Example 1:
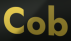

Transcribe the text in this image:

Cob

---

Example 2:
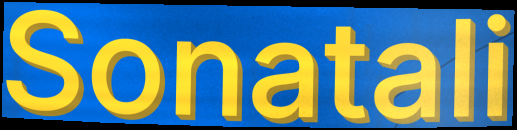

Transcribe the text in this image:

Sonatali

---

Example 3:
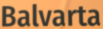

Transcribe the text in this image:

Balvarta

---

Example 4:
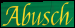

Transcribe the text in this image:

Abusch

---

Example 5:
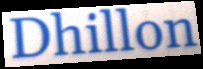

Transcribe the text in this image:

Dhillon